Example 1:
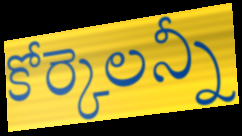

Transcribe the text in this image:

కోర్కెలన్నీ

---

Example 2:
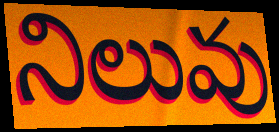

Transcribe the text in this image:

నిలువు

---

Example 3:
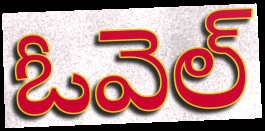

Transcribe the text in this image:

ఓవెల్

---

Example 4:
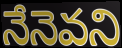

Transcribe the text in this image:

నేనెవని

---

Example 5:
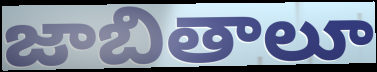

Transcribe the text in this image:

జాబితాలూ